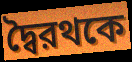
দ্বৈরথকে